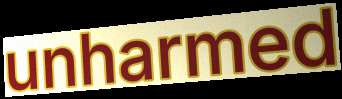
unharmed